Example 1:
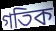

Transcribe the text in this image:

গতিক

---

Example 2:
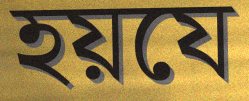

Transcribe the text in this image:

হয়যে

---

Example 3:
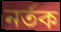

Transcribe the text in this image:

নৰ্তক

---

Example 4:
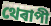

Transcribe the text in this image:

থেৰাপী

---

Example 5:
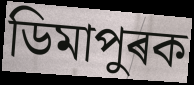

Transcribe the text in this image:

ডিমাপুৰক